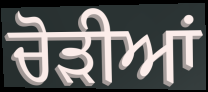
ਚੋੜੀਆਂ